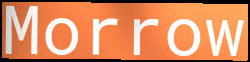
Morrow